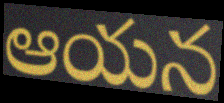
ఆయన